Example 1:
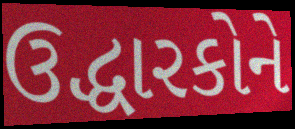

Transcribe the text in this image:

ઉદ્ધારકોને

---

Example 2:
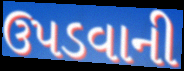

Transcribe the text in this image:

ઉપડવાની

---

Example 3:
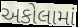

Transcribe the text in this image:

અકોલામાં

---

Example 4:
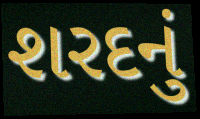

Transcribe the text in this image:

શરદનું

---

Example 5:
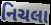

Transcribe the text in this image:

નિચલા